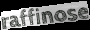
raffinose